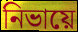
নিভায়ে